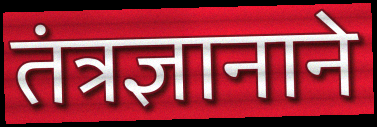
तंत्रज्ञानाने